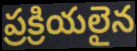
ప్రక్రియలైన